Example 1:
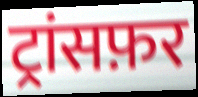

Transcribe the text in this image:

ट्रांसफ़र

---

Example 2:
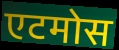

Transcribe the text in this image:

एटमोस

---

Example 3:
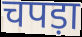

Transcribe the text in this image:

चपड़ा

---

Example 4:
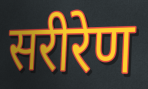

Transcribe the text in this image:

सरीरेण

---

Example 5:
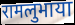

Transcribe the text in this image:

रामलुभाया